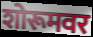
शोरूमवर